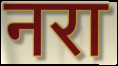
नरा